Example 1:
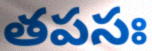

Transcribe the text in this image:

తపసః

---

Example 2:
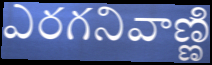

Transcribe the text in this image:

ఎరగనివాణ్ణి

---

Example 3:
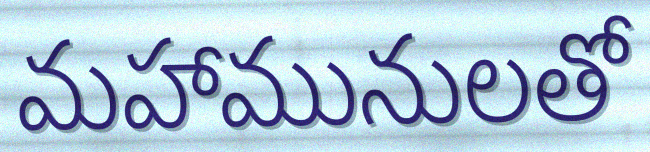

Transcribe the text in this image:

మహామునులతో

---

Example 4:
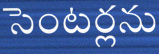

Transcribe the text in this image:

సెంటర్లను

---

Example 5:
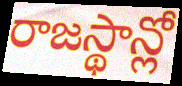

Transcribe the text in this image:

రాజస్థాన్లో